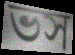
ভস